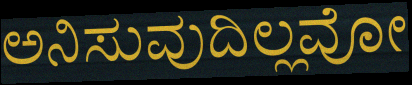
ಅನಿಸುವುದಿಲ್ಲವೋ